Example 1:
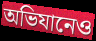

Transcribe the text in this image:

অভিযানেও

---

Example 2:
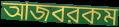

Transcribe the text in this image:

আজবরকম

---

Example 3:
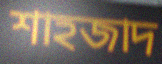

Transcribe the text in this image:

শাহজাদ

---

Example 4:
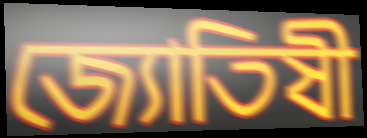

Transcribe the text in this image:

জ্যোতিষী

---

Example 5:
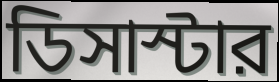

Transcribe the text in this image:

ডিসাস্টার